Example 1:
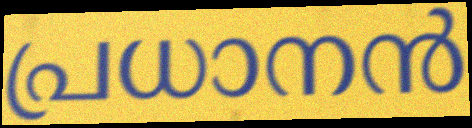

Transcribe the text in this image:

പ്രധാനൻ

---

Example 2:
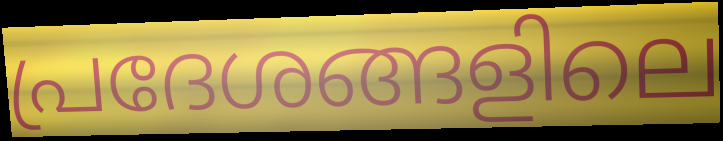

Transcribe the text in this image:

പ്രദേശങ്ങളിലെ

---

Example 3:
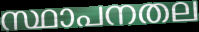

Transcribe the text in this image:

സ്ഥാപനതല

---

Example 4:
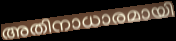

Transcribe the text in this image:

അതിനാധാരമായി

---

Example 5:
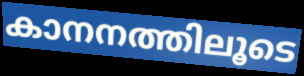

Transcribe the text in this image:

കാനനത്തിലൂടെ